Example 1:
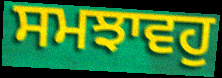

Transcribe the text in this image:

ਸਮਝਾਵਹੁ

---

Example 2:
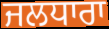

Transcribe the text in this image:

ਜਲਧਾਰਾ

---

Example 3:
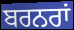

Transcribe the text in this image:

ਬਰਨਰਾਂ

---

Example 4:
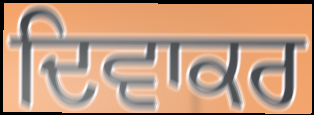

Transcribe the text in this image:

ਦਿਵਾਕਰ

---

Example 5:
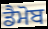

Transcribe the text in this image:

ਡੈਮੋਬ